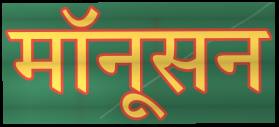
मॉनूसन